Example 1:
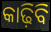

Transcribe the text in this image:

କାଢ଼ିବି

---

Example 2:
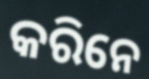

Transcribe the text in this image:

କରିନେ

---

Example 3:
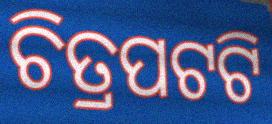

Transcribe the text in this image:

ଚିତ୍ରପଟଟି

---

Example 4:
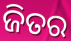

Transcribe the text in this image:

ଜିତର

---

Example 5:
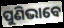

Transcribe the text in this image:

ପୁଣିଭାବେ